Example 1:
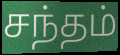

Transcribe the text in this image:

சந்தம்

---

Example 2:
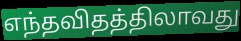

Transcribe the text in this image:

எந்தவிதத்திலாவது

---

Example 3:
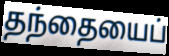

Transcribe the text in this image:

தந்தையைப்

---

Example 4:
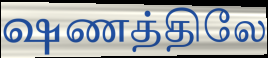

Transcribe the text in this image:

ஷணத்திலே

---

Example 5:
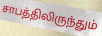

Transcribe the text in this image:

சாபத்திலிருந்தும்